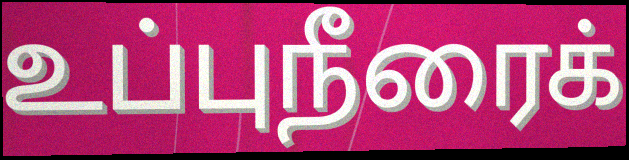
உப்புநீரைக்